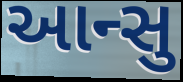
આન્સુ